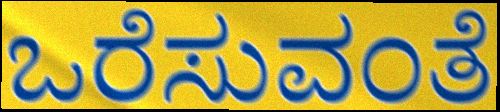
ಒರೆಸುವಂತೆ